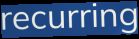
recurring